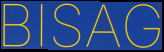
BISAG